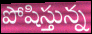
పోషిస్తున్న